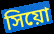
সিয়ো